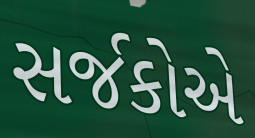
સર્જકોએ